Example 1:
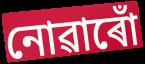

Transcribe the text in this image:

নোৱাৰোঁ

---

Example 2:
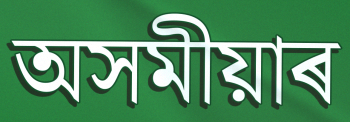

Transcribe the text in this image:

অসমীয়াৰ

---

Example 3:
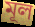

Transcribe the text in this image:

মূল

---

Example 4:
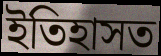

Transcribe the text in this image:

ইতিহাসত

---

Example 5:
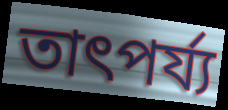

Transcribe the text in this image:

তাৎপৰ্য্য